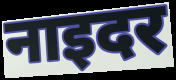
नाइदर